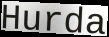
Hurda